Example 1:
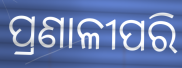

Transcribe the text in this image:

ପ୍ରଣାଳୀପରି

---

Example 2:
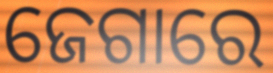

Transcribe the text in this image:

ଜେଗାରେ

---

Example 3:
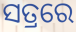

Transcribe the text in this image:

ସତ୍ରରେ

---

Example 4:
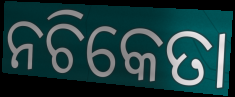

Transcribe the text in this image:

ନଚିକେତା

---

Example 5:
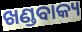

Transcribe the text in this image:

ଖଣ୍ଡବାକ୍ୟ